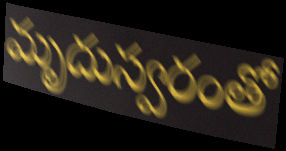
మృదుస్వరంతో